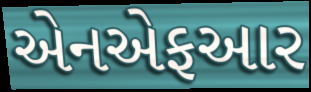
એનએફઆર